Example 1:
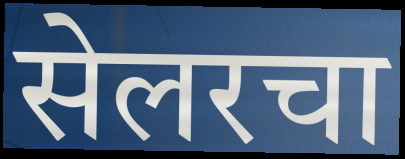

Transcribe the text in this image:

सेलरचा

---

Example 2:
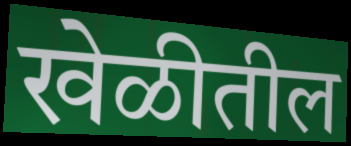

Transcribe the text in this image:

खेळीतील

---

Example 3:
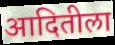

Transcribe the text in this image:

आदितीला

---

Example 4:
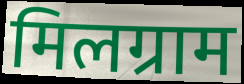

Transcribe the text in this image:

मिलग्राम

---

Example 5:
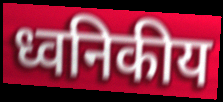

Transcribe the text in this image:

ध्वनिकीय